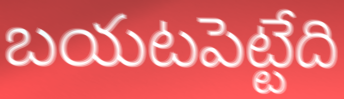
బయటపెట్టేది